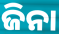
ଜିନା